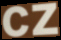
cz